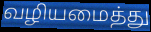
வழியமைத்து